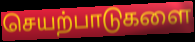
செயற்பாடுகளை